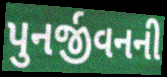
પુનર્જીવનની